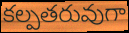
కల్పతరువుగా